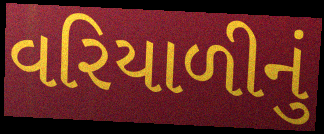
વરિયાળીનું